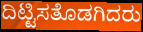
ದಿಟ್ಟಿಸತೊಡಗಿದರು